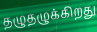
தழுதழுக்கிறது